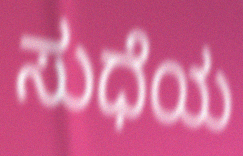
ಸುಧೆಯ